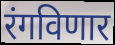
रंगविणार